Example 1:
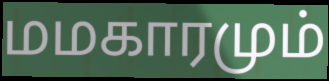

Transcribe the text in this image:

மமகாரமும்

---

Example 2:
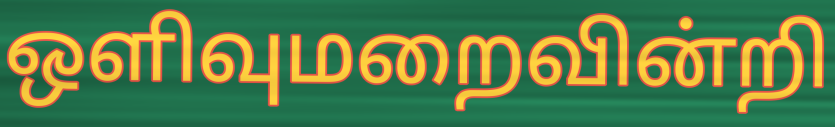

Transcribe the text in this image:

ஒளிவுமறைவின்றி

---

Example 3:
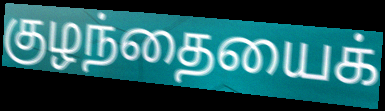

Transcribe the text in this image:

குழந்தையைக்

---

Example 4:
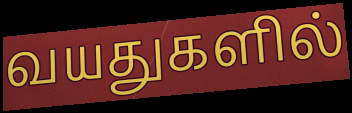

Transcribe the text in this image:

வயதுகளில்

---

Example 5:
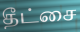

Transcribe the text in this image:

தீட்சை